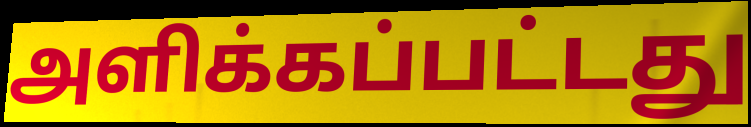
அளிக்கப்பட்டது